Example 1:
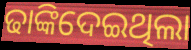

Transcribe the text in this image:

ଢାଙ୍କିଦେଇଥିଲା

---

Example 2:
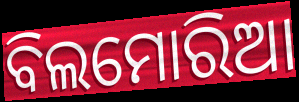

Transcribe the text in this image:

ବିଲମୋରିଆ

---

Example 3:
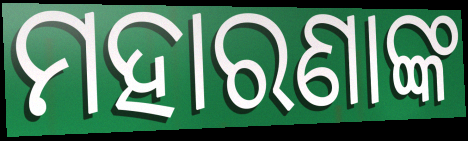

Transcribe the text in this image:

ମହାରଣାଙ୍କ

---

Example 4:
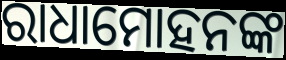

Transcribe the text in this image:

ରାଧାମୋହନଙ୍କ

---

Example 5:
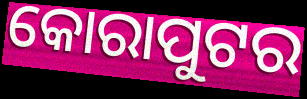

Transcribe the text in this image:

କୋରାପୁଟର